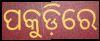
ପକୁଡ଼ିରେ